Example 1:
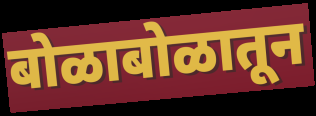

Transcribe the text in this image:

बोळाबोळातून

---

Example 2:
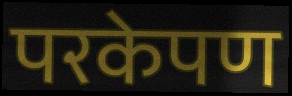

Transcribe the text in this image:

परकेपण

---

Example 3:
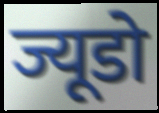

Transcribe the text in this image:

ज्यूडो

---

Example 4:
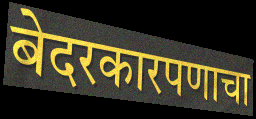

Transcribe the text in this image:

बेदरकारपणाचा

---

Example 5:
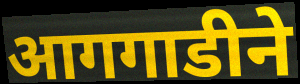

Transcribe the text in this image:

आगगाडीने